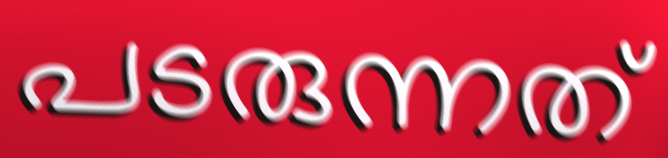
പടരുന്നത്